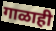
गाळाही